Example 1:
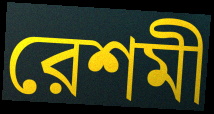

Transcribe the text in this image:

রেশমী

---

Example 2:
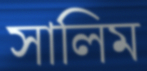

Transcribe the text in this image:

সালিম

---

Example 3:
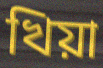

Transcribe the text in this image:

খিয়া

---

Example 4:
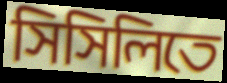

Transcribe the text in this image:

সিসিলিতে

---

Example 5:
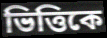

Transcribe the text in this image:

ভিত্তিকে